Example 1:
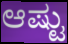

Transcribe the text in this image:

ಆಷ್ಟು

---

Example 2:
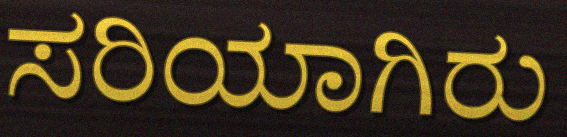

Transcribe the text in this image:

ಸರಿಯಾಗಿರು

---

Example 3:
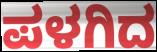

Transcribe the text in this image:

ಪಳಗಿದ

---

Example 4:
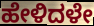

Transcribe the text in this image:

ಹೇಳಿದಳೇ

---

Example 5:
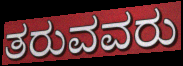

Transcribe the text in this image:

ತರುವವರು